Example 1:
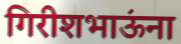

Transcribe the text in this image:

गिरीशभाऊंना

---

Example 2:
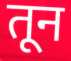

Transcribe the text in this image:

तून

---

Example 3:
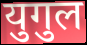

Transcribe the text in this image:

युगुल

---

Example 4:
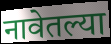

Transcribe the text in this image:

नावेतल्या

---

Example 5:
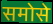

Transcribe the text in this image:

समोसे